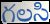
గలసి